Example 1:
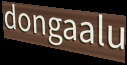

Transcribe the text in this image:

dongaalu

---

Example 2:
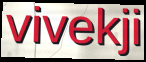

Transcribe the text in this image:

vivekji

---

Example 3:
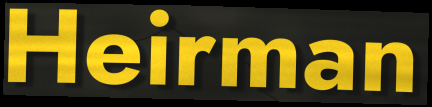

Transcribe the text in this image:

Heirman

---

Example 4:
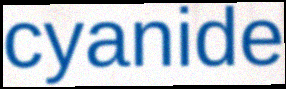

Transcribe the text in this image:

cyanide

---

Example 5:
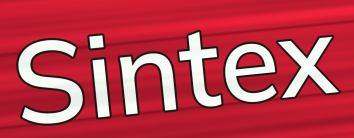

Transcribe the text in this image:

Sintex